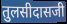
तुलसीदासजी